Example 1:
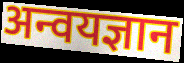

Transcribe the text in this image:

अन्वयज्ञान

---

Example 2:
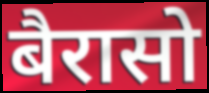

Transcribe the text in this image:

बैरासो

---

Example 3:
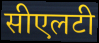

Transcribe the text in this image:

सीएलटी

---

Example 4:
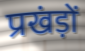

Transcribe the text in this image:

प्रखंड़ों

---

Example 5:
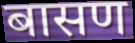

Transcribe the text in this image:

बासण